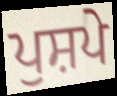
ਪੁਸ਼ਪੇ